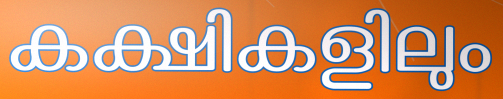
കക്ഷികളിലും